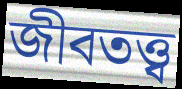
জীবতত্ত্ব